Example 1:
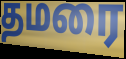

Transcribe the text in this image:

தமரை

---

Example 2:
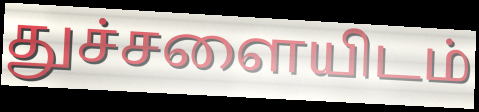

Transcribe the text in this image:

துச்சளையிடம்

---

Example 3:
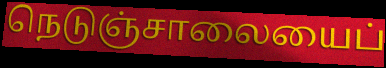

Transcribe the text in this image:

நெடுஞ்சாலையைப்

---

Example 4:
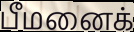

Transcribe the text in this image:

பீமனைக்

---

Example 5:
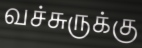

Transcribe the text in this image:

வச்சுருக்கு